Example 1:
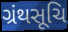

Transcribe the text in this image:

ગ્રંથસૂચિ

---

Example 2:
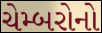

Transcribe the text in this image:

ચેમ્બરોનો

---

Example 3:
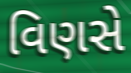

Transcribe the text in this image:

વિણસે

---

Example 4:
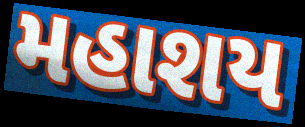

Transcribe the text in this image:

મહાશય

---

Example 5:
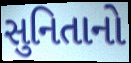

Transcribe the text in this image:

સુનિતાનો